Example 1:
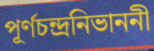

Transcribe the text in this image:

পূর্ণচন্দ্রনিভাননী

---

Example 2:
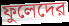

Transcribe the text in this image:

ফুলেদের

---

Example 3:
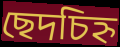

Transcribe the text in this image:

ছেদচিহ্ন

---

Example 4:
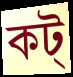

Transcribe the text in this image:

কট্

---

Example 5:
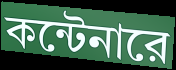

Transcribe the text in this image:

কন্টেনারে